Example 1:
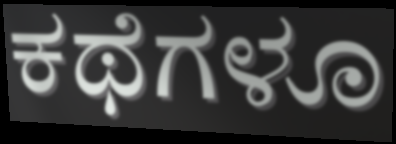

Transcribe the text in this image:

ಕಥೆಗಳೂ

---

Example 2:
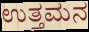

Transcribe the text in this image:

ಉತ್ತಮನ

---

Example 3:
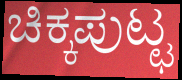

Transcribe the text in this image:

ಚಿಕ್ಕಪುಟ್ಟ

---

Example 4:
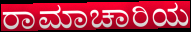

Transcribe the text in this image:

ರಾಮಾಚಾರಿಯ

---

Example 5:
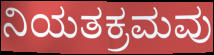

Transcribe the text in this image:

ನಿಯತಕ್ರಮವು